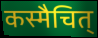
कस्मैचित्